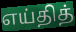
எய்தித்